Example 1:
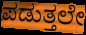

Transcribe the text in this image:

ಪಡುತ್ತಲೇ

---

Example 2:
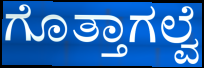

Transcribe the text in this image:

ಗೊತ್ತಾಗಲ್ವೆ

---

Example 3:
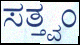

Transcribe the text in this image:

ಸತ್ತ್ವಂ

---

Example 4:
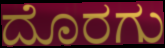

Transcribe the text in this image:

ದೊರಗು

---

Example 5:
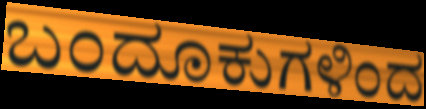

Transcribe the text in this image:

ಬಂದೂಕುಗಳಿಂದ